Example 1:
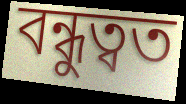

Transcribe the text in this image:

বন্ধুত্বত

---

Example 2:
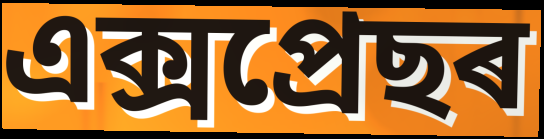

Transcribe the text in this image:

এক্সপ্ৰেছৰ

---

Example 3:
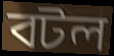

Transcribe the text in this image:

বটল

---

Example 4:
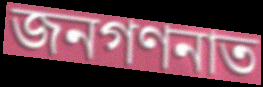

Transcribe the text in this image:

জনগণনাত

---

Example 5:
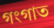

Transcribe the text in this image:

গংগাত